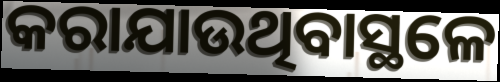
କରାଯାଉଥିବାସ୍ଥଳେ